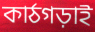
কাঠগড়াই